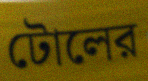
টোলের